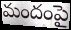
మందంపై